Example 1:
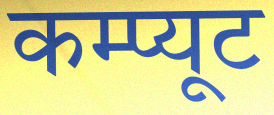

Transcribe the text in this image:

कम्प्यूट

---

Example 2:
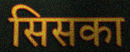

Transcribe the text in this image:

सिसका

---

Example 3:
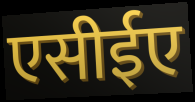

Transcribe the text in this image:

एसीईए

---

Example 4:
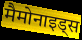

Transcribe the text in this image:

मैमोनाइड्स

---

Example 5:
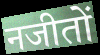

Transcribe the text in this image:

नजीतों